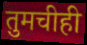
तुमचीही